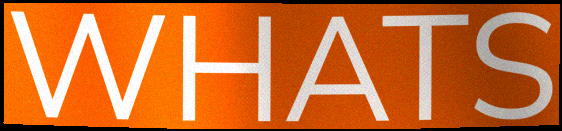
WHATS